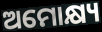
ଅମୋକ୍ଷ୍ୟ